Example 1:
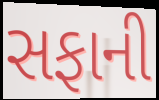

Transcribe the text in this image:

સફાની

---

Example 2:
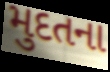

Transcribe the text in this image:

મુદતના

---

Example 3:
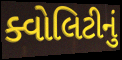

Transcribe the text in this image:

ક્વોલિટીનું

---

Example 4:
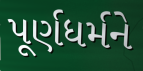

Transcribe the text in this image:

પૂર્ણધર્મને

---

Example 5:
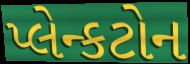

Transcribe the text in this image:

પ્લેન્કટોન